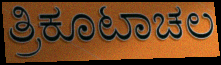
ತ್ರಿಕೂಟಾಚಲ